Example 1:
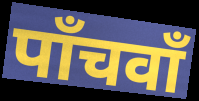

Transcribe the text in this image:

पाँचवाँ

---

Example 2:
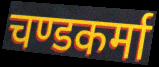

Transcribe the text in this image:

चण्डकर्मा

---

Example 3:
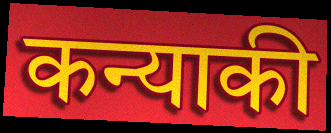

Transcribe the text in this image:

कन्याकी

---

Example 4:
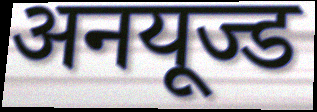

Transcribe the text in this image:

अनयूज्ड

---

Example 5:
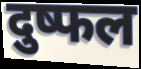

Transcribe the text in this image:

दुष्फल